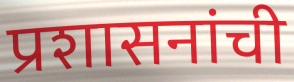
प्रशासनांची